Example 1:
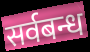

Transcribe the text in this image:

सर्वबन्ध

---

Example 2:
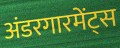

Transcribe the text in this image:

अंडरगारमेंट्स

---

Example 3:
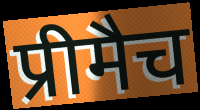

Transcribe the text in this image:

प्रीमैच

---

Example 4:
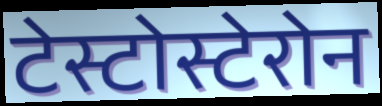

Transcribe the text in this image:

टेस्टोस्टेरोन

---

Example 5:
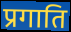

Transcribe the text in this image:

प्रगाति